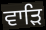
ਵਾੜਿ